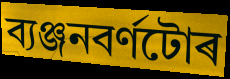
ব্যঞ্জনবৰ্ণটোৰ